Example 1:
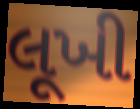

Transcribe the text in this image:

લૂખી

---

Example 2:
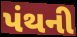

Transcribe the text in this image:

પંથની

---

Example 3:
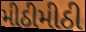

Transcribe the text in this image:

મીઠીમીઠી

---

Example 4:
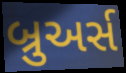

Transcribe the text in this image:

બ્રુઅર્સ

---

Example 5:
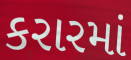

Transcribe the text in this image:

કરારમાં